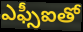
ఎఫ్సీఐతో